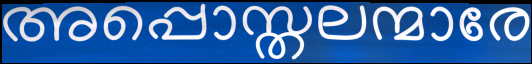
അപ്പൊസ്തലന്മാരേ